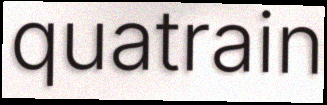
quatrain